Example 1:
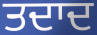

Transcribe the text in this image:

ਤਦਾਦ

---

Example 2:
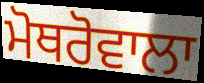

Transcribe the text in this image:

ਮੋਥਰੋਵਾਲਾ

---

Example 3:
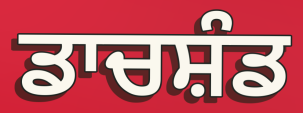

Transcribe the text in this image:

ਡਾਚਸ਼ੰਡ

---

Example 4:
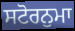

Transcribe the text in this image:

ਸਟੋਰਨੁਮਾ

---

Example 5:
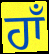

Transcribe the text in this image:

ਹਾਁ